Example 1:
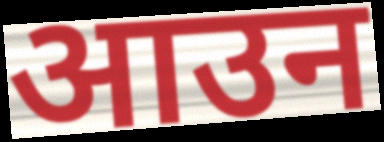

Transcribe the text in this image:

आउन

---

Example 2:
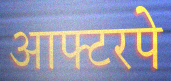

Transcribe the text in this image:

आफ्टरपे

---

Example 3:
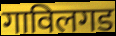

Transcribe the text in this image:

गाविलगड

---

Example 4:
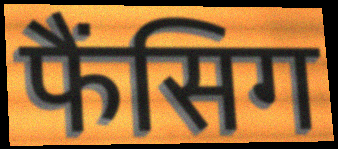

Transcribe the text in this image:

फैंसिग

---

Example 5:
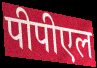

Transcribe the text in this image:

पीपीएल